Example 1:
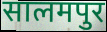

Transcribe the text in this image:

सालमपुर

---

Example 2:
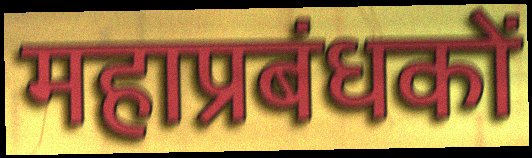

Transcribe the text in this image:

महाप्रबंधकों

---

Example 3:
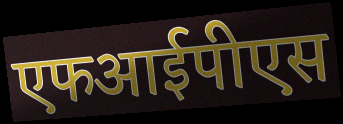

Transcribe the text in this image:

एफआईपीएस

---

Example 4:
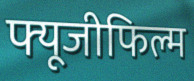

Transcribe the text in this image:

फ्यूजीफिल्म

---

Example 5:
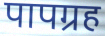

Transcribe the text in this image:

पापग्रह